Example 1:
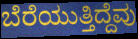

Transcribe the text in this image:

ಬೆರೆಯುತ್ತಿದ್ದೆವು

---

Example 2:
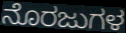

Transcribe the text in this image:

ನೊರಜುಗಳ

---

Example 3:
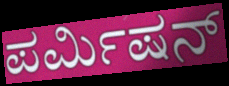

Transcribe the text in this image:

ಪರ್ಮಿಷನ್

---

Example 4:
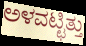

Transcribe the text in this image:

ಅಳವಟ್ಟಿತ್ತು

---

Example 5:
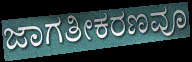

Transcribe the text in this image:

ಜಾಗತೀಕರಣವೂ